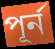
পূর্ন